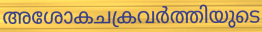
അശോകചക്രവർത്തിയുടെ